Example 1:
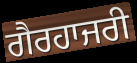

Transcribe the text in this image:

ਗੈਰਹਾਜਰੀ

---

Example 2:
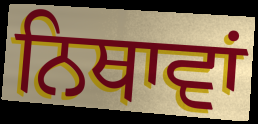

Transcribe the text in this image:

ਨਿਥਾਵਾਂ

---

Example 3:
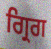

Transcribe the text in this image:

ਗ੍ਰਿਗ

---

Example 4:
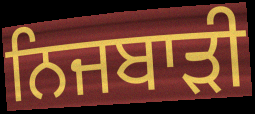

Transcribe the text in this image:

ਨਿਜਬਾੜੀ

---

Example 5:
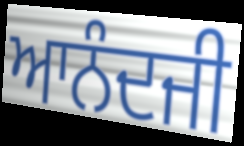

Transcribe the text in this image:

ਆਨੰਦਜੀ